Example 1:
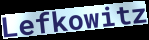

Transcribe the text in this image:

Lefkowitz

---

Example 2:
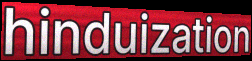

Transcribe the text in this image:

hinduization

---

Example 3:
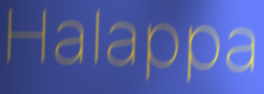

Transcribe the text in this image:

Halappa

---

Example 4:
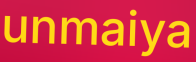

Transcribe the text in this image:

unmaiya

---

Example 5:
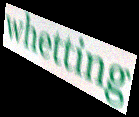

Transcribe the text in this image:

whetting